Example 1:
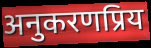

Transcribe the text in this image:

अनुकरणप्रिय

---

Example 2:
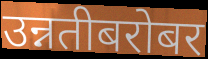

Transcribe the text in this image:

उन्नतीबरोबर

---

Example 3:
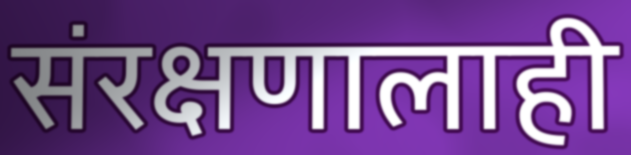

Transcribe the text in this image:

संरक्षणालाही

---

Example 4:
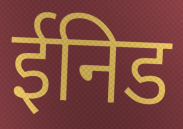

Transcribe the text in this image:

ईनिड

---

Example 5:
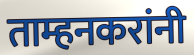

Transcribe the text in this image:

ताम्हनकरांनी